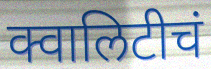
क्वालिटीचं